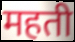
महती